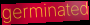
germinated